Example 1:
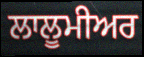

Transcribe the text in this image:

ਲਾਲੂਮੀਅਰ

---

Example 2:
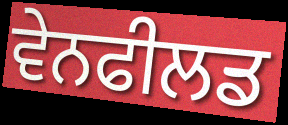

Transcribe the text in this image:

ਵੇਨਫੀਲਡ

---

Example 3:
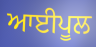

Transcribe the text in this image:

ਆਈਪੂਲ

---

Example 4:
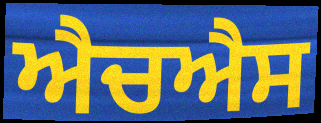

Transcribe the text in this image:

ਐਚਐਸ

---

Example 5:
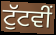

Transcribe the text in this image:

ਟੁੱਟਵੀਂ